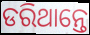
ଡରିଥାନ୍ତେ